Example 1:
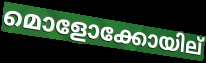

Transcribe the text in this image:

മൊളോക്കോയില്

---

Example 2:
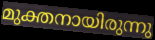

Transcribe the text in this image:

മുക്തനായിരുന്നു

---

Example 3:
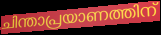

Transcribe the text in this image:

ചിന്താപ്രയാണത്തിന്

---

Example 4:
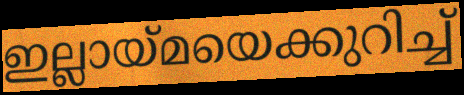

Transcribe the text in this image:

ഇല്ലായ്മയെക്കുറിച്ച്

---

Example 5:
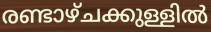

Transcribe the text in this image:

രണ്ടാഴ്ചക്കുള്ളിൽ